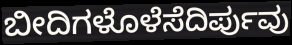
ಬೀದಿಗಳೊಳೆಸೆದಿರ್ಪುವು